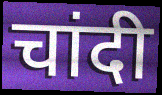
चांदी